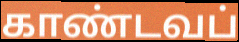
காண்டவப்